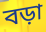
বড়া